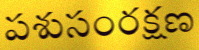
పశుసంరక్షణ